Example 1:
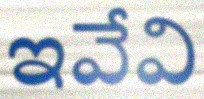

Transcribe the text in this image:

ఇవేవి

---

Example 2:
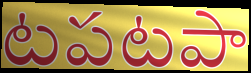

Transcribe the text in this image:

టపటపా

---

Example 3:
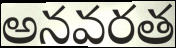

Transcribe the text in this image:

అనవరత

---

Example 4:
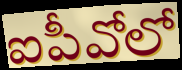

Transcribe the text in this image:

ఐపీవోలో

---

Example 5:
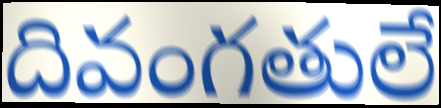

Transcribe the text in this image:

దివంగతులే